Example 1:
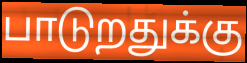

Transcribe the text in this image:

பாடுறதுக்கு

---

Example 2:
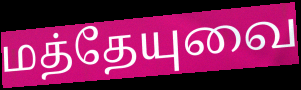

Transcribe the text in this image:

மத்தேயுவை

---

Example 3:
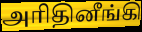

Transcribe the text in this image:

அரிதினீங்கி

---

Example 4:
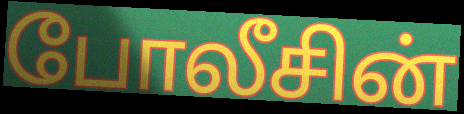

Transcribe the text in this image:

போலீசின்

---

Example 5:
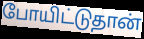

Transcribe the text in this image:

போயிட்டுதான்